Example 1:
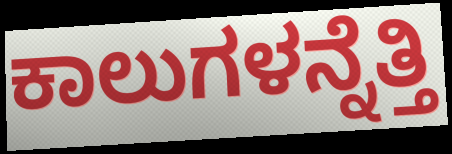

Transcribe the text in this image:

ಕಾಲುಗಳನ್ನೆತ್ತಿ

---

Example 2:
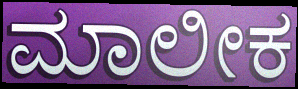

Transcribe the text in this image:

ಮಾಲೀಕ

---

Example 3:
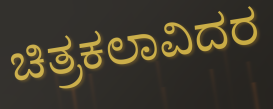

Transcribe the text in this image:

ಚಿತ್ರಕಲಾವಿದರ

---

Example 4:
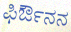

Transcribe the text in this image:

ಫಿರ್ಔನನ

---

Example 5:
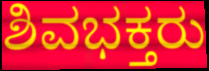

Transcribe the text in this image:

ಶಿವಭಕ್ತರು